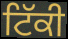
ਟਿੱਕੀ